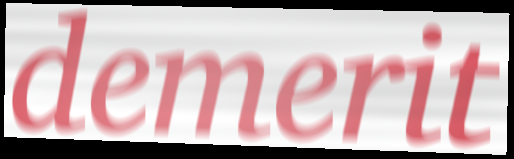
demerit